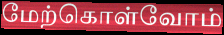
மேற்கொள்வோம்